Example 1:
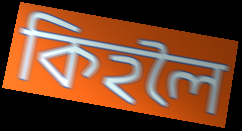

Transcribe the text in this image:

কিহলৈ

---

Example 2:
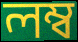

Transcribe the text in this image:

লম্ব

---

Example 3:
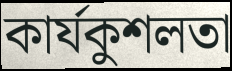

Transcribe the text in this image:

কাৰ্যকুশলতা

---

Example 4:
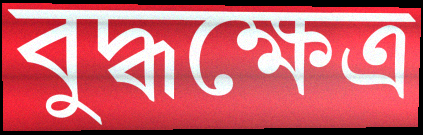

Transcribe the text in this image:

বুদ্ধক্ষেত্ৰ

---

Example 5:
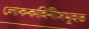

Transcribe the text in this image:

লোককাহিনীসমূহত